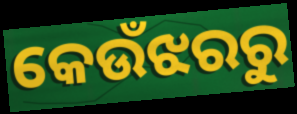
କେଉଁଝରରୁ